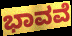
ಭಾವವೆ